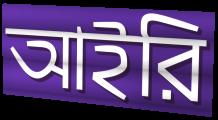
আইরি